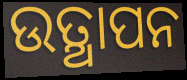
ଉତ୍ଥାପନ